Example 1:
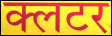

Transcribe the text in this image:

क्लटर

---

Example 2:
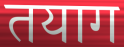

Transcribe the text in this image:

तयाग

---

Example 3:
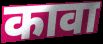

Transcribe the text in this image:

कावा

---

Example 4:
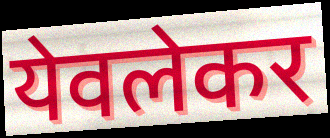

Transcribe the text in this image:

येवलेकर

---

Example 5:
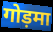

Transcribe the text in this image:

गोड़मा